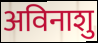
अविनाशु